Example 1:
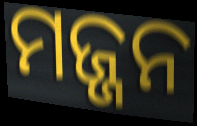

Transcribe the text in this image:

ମଜ୍ଜନ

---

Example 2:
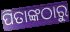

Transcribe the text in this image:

ପିତାଙ୍କଠାରୁ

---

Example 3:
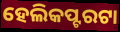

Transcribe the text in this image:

ହେଲିକପ୍ଟରଟା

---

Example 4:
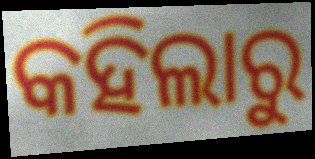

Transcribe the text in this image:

କହିଲାରୁ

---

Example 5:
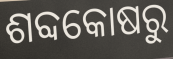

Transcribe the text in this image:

ଶବ୍ଦକୋଷରୁ